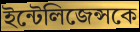
ইন্টেলিজেন্সকে